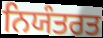
ਨਿਯੰਤਰਤ